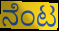
ನೆಂಟ